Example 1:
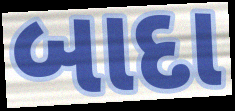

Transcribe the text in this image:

બાદા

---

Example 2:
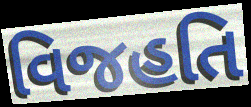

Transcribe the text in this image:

વિજહતિ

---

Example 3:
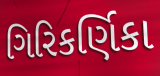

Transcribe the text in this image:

ગિરિકર્ણિકા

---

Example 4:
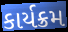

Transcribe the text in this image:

કાર્યક્રમ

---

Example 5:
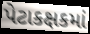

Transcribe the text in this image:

પેટાકક્ષકમાં